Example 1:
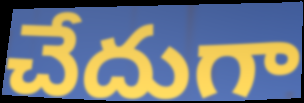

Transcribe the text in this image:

చేదుగా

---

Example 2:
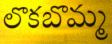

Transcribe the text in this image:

లొకబొమ్మ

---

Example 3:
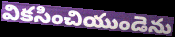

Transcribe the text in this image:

వికసించియుండెను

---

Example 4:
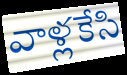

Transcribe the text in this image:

వాళ్లకేసి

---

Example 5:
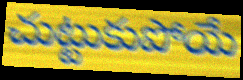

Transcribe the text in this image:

చుట్టుకుపోయే